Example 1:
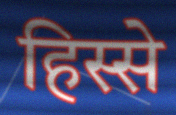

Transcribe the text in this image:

हिस्से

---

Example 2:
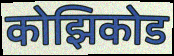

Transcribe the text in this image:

कोझिकोड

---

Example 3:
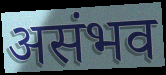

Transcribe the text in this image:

असंभव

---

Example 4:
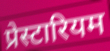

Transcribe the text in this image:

प्रेस्टारियम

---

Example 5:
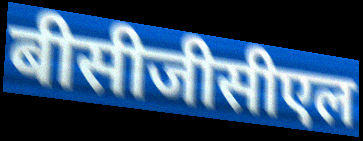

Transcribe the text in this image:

बीसीजीसीएल